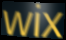
wix